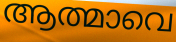
ആത്മാവെ